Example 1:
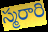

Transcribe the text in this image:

స్మరారి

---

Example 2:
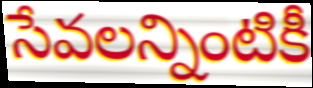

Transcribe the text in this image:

సేవలన్నింటికీ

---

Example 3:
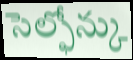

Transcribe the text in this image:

సెల్ఫోన్కు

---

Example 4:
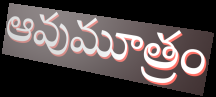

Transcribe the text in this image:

ఆవుమూత్రం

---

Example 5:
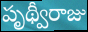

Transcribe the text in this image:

పృథ్వీరాజు